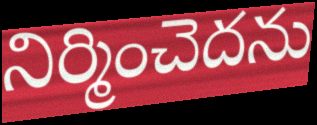
నిర్మించెదను